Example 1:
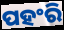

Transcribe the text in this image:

ପହଂରି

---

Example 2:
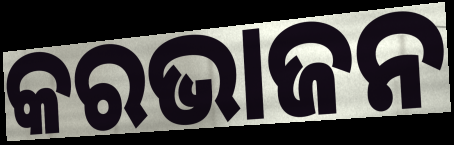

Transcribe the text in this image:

କରଭାଜନ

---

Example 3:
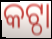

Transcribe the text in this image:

କଟ୍ଠା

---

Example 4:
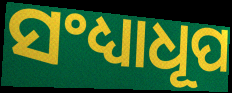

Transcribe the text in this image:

ସଂଧ୍ୟାଧୂପ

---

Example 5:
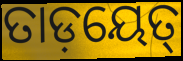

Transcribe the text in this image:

ତାଡ଼ୟେତ୍